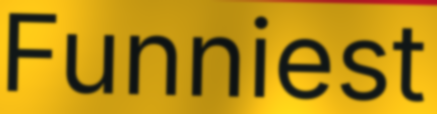
Funniest